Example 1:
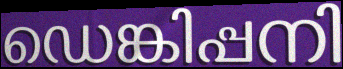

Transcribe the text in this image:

ഡെങ്കിപ്പനി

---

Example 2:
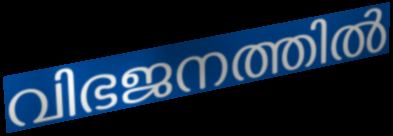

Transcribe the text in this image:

വിഭജനത്തിൽ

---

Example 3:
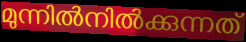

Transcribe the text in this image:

മുന്നിൽനിൽക്കുന്നത്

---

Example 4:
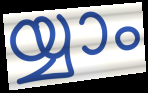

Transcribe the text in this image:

യ്യാം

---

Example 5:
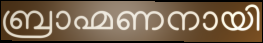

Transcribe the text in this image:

ബ്രാഹ്മണനായി